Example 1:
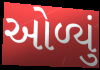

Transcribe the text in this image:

ઓળ્યું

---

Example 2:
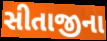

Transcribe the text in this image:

સીતાજીના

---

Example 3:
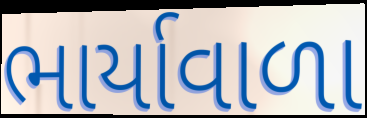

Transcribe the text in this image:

ભાર્યાવાળા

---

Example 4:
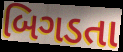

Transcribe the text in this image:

બિગડતા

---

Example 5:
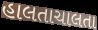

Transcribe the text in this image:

હાલતાચાલતા